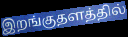
இறங்குதளத்தில்